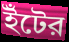
ইঁটের